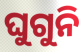
ଘୁଗୁନି